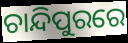
ଚାନ୍ଦିପୁରରେ